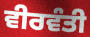
ਵੀਰਵੰਤੀ